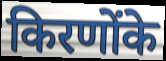
किरणोंके